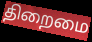
திறைமை